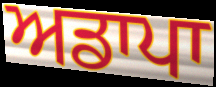
ਅਡਾਪਾ